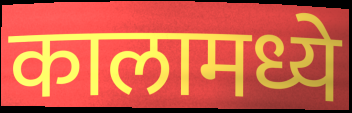
कालामध्ये